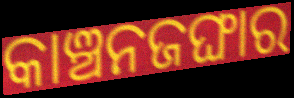
କାଞ୍ଚନଜଙ୍ଘାର